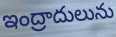
ఇంద్రాదులును